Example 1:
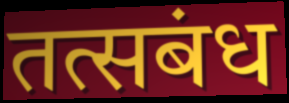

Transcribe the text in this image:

तत्सबंध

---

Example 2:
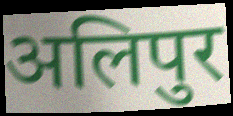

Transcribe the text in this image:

अलिपुर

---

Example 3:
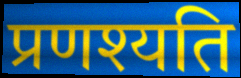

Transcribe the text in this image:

प्रणश्यति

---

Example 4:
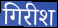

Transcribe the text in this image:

गिरीश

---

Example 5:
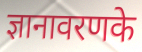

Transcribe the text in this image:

ज्ञानावरणके